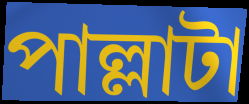
পাল্লাটা